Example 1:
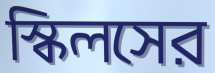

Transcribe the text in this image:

স্কিলসের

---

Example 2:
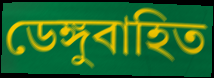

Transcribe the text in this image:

ডেঙ্গুবাহিত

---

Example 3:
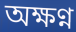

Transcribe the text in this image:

অক্ষণ্ন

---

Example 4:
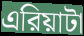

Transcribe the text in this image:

এরিয়াটা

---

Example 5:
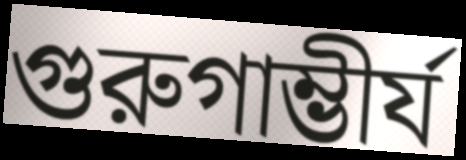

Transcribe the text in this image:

গুরুগাম্ভীর্য